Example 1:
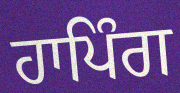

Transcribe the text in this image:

ਹਾਪਿੰਗ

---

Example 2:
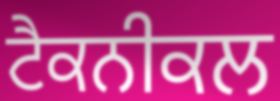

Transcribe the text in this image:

ਟੈਕਨੀਕਲ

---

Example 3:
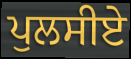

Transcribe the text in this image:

ਪੁਲਸੀਏ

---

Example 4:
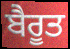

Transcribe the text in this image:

ਬੈਰੂਤ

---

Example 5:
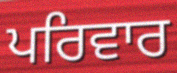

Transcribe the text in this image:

ਪਰਿਵਾਰ